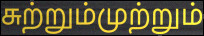
சுற்றும்முற்றும்